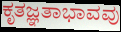
ಕೃತಜ್ಞತಾಭಾವವು